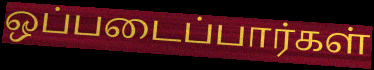
ஒப்படைப்பார்கள்